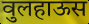
वुलहाऊस